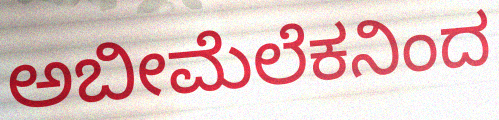
ಅಬೀಮೆಲೆಕನಿಂದ